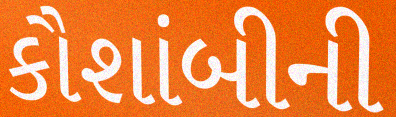
કૌશાંબીની